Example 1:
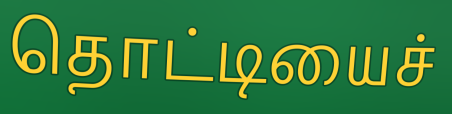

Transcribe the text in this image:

தொட்டியைச்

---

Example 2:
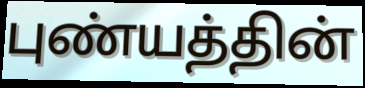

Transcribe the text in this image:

புண்யத்தின்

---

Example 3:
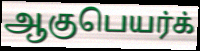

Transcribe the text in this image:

ஆகுபெயர்க்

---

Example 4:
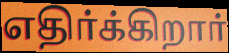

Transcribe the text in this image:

எதிர்க்கிறார்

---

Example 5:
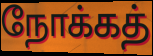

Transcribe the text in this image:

நோக்கத்